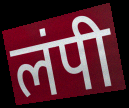
लंपी